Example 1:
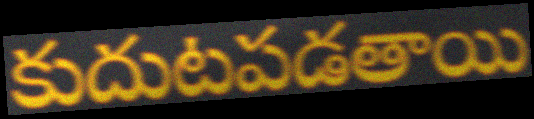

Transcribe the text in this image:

కుదుటపడతాయి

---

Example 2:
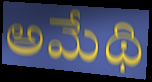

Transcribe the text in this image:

అమేథి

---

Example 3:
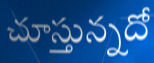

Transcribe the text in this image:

చూస్తున్నదో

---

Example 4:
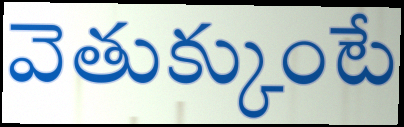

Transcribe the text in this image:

వెతుక్కుంటే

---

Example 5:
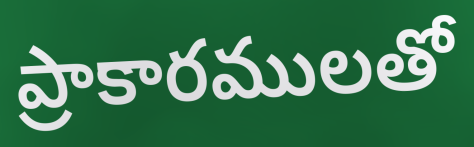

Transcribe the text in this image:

ప్రాకారములతో